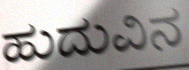
ಹುದುವಿನ